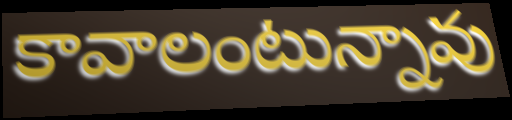
కావాలంటున్నావు